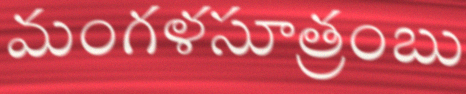
మంగళసూత్రంబు